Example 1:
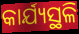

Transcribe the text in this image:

କାର୍ଯ୍ୟସ୍ଥଳି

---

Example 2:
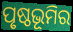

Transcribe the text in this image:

ପୃଷ୍ଠଭୂମିର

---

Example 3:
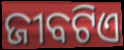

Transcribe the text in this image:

ଜୀବଟିଏ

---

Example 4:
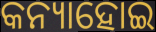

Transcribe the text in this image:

କନ୍ୟାହୋଇ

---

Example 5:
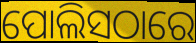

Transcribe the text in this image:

ପୋଲିସଠାରେ